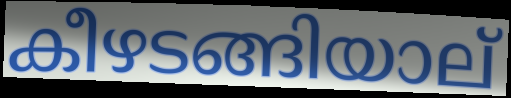
കീഴടങ്ങിയാല്